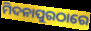
ମିଦନାପୁରଠାରେ